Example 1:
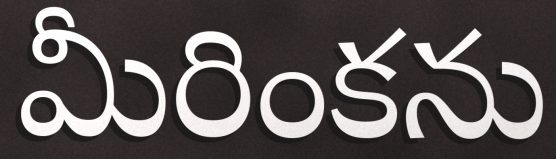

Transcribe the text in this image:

మీరింకను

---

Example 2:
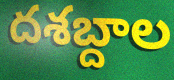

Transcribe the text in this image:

దశబ్దాల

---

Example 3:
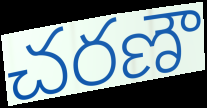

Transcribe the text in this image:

చరణౌ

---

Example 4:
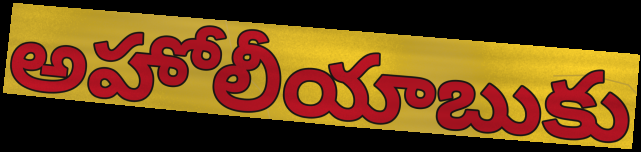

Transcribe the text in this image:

అహోలీయాబుకు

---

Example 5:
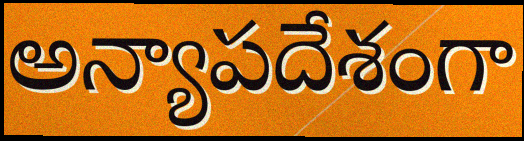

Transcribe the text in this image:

అన్యాపదేశంగా